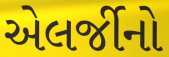
એલર્જીનો